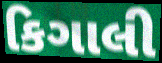
કિગાલી